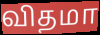
விதமா